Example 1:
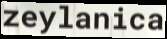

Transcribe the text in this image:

zeylanica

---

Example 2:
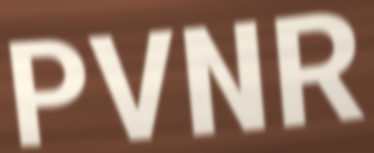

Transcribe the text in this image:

PVNR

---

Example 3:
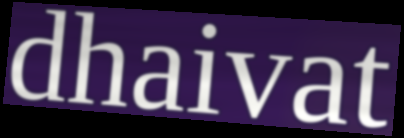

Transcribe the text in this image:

dhaivat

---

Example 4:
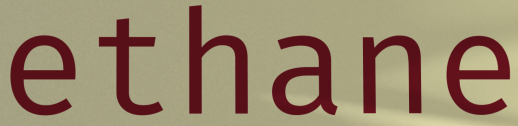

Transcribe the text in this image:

ethane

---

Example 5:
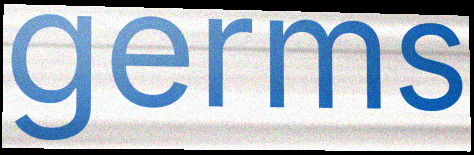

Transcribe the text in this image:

germs